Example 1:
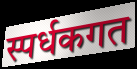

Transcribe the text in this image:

स्पर्धकगत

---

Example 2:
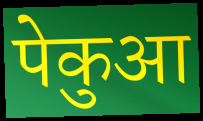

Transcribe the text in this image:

पेकुआ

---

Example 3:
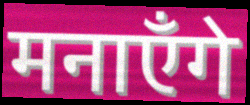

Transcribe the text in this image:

मनाएँगे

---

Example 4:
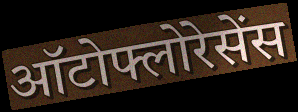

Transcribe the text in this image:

ऑटोफ्लोरेसेंस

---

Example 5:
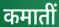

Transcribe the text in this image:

कमातीं